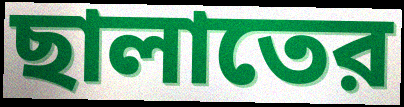
ছালাতের